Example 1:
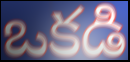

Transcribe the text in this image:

ఒకడి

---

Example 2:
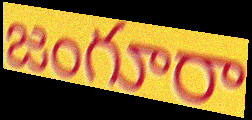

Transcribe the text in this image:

జంగూరా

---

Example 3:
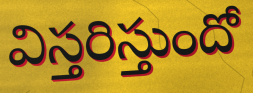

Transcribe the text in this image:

విస్తరిస్తుందో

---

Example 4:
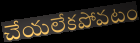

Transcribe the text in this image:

చేయలేకపోవటం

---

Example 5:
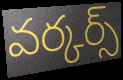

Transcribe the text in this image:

వర్కర్స్